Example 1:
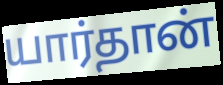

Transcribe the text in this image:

யார்தான்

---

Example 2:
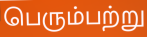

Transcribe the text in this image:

பெரும்பற்று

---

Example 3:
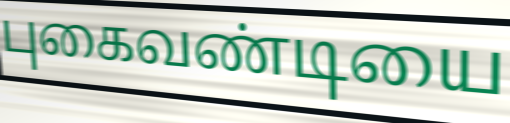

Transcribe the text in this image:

புகைவண்டியை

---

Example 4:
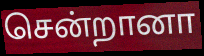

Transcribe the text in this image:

சென்றானா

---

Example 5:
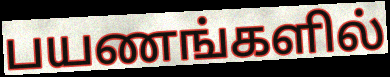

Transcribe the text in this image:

பயணங்களில்